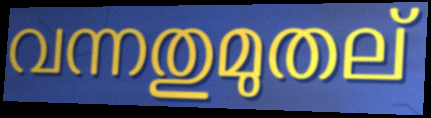
വന്നതുമുതല്